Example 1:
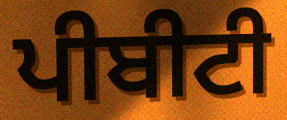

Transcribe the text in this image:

ਪੀਬੀਟੀ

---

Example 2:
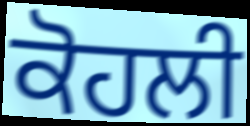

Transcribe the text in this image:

ਕੋਹਲੀ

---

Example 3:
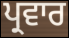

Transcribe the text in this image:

ਪ੍ਰਵਾਰ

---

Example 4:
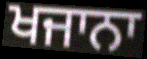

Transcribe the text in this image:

ਖਜਾਨਾ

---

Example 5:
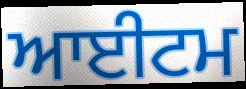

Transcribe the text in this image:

ਆਈਟਮ